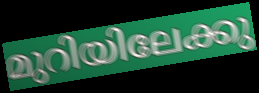
മുറിയിലേക്കു